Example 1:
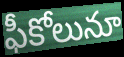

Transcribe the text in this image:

ఫీకోలునూ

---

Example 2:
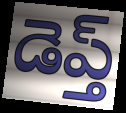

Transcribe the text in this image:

డెప్త్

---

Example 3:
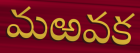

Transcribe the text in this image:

మఱవక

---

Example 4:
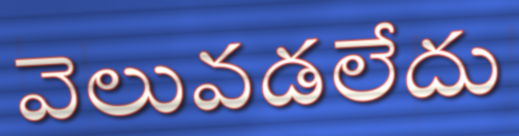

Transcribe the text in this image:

వెలువడలేదు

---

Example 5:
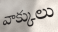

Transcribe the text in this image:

వాక్కులు